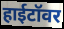
हाईटॉवर